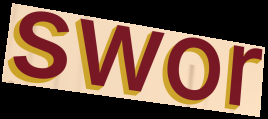
swor